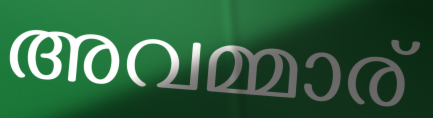
അവമ്മാര്